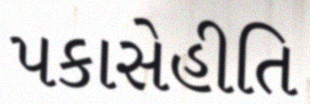
પકાસેહીતિ